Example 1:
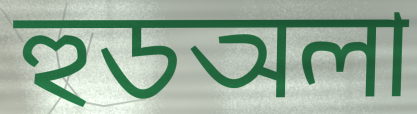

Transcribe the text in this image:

হুডঅলা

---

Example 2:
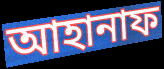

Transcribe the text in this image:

আহানাফ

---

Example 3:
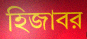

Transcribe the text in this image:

হিজাবর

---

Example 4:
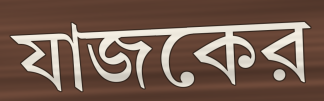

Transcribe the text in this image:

যাজকের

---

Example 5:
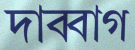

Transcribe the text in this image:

দাব্বাগ